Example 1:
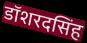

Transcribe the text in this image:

डॉशरदसिंह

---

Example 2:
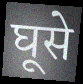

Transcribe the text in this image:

घूसे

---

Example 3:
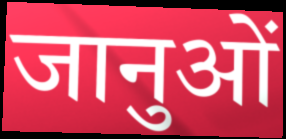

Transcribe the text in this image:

जानुओं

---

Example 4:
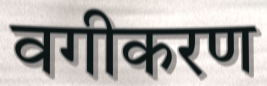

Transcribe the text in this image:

वगीकरण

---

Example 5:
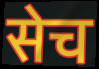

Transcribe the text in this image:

सेच